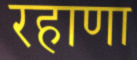
रहाणा